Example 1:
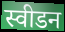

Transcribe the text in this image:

स्वीडन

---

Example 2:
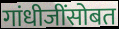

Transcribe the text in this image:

गांधीजींसोबत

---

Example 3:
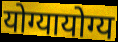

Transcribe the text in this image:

योग्यायोग्य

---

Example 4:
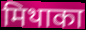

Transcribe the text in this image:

मिथाका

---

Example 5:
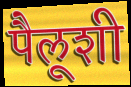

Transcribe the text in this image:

पैलूशी